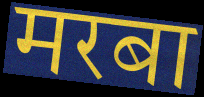
मरबा